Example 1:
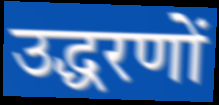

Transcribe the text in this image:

उद्धरणों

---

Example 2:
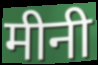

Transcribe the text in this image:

मीनी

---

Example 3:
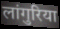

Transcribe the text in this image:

लांगुरिया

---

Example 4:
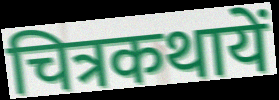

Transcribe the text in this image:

चित्रकथायें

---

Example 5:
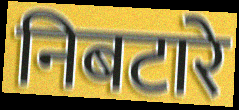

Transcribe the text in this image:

निबटारे